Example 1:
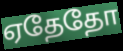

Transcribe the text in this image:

ஏதேதோ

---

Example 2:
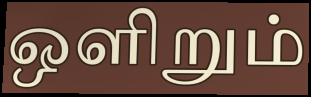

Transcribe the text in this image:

ஒளிறும்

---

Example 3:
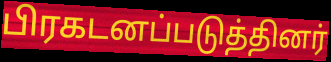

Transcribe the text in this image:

பிரகடனப்படுத்தினர்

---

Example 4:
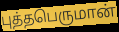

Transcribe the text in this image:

புத்தபெருமான்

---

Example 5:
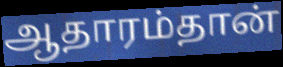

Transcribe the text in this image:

ஆதாரம்தான்